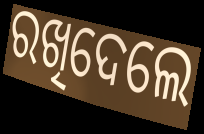
ରଖିଦେଲେ